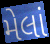
મેલાં